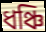
ধঞ্চি